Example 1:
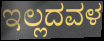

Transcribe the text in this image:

ಇಲ್ಲದವಳ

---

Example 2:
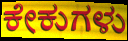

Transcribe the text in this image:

ಕೇಕುಗಳು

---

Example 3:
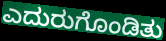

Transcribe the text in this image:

ಎದುರುಗೊಂಡಿತು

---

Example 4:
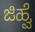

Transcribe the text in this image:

ಜಿಹ್ವೆ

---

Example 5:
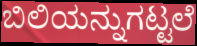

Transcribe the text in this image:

ಬಿಲಿಯನ್ನುಗಟ್ಟಲೆ